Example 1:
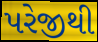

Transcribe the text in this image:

પરેજીથી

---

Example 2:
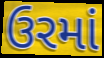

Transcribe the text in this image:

ઉરમાં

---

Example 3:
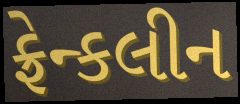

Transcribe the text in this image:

ફ્રેન્કલીન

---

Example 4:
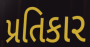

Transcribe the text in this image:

પ્રતિકાર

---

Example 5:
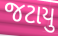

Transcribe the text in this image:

જટાયુ